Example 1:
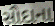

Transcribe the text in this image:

સૌદાના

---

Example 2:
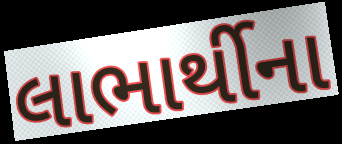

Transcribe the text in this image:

લાભાર્થીના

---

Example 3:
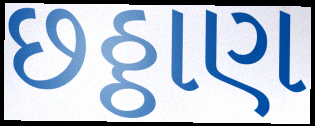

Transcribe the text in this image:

છઠ્ઠાણ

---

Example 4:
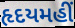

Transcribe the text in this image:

હૃદયમહીં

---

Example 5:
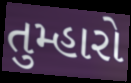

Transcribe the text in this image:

તુમ્હારો